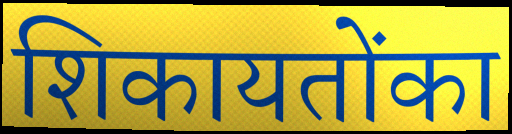
शिकायतोंका